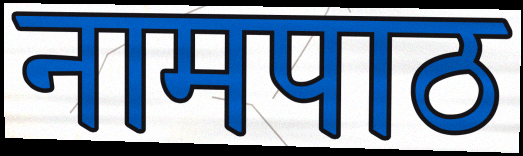
नामपाठ